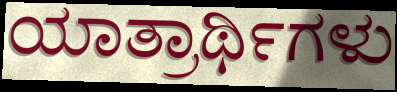
ಯಾತ್ರಾರ್ಥಿಗಳು